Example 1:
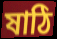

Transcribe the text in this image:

ষাঠি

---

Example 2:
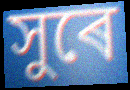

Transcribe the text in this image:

সুৰে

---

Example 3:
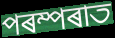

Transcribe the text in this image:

পৰম্পৰাত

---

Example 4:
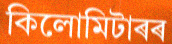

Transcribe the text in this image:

কিলোমিটাৰৰ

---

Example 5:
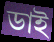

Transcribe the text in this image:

ডাই